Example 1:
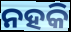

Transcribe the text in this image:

ନହକି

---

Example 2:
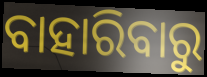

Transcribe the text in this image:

ବାହାରିବାରୁ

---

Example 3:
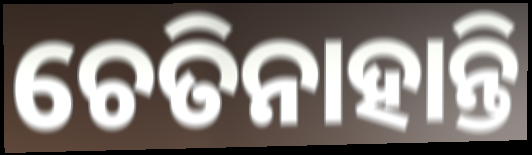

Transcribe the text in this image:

ଚେତିନାହାନ୍ତି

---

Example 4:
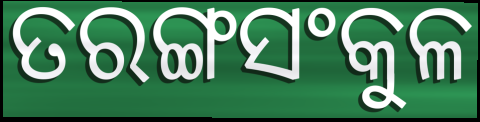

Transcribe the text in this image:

ତରଙ୍ଗସଂକୁଳ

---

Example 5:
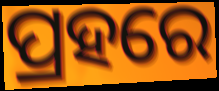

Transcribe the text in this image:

ପ୍ରହରେ